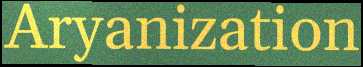
Aryanization